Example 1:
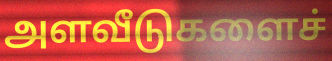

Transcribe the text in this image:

அளவீடுகளைச்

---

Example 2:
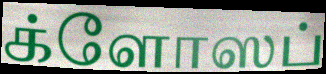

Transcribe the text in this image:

க்ளோஸப்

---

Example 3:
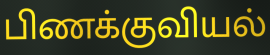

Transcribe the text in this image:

பிணக்குவியல்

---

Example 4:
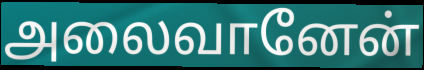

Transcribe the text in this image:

அலைவானேன்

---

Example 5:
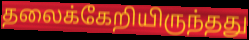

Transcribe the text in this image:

தலைக்கேறியிருந்தது